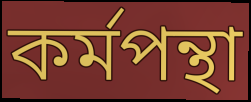
কৰ্মপন্থা